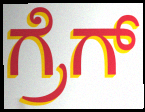
ಗ್ರೆಗ್